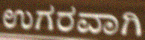
ಉಗರವಾಗಿ